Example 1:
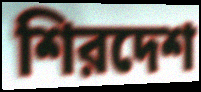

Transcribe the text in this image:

শিরদেশ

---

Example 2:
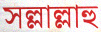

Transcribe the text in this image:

সল্লাল্লাহু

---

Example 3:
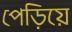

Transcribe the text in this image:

পেড়িয়ে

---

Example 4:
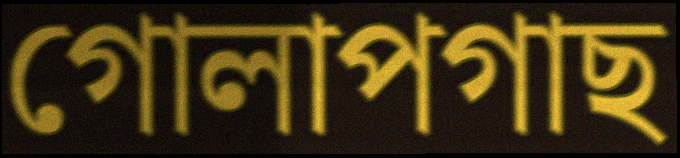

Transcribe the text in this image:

গোলাপগাছ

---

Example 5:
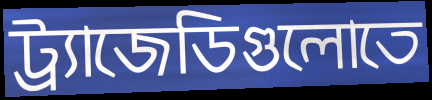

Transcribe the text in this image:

ট্র্যাজেডিগুলোতে